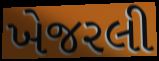
ખેજરલી